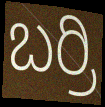
ಬರ್ರಿ